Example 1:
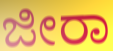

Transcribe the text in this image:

ಜೀರಾ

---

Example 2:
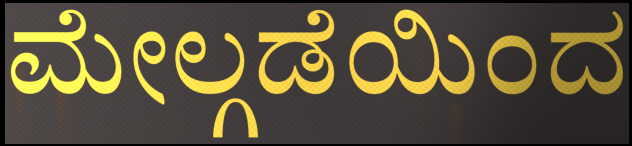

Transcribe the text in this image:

ಮೇಲ್ಗಡೆಯಿಂದ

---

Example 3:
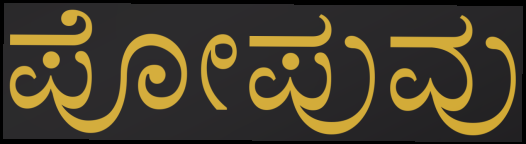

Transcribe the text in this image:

ಪೋಪುವು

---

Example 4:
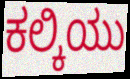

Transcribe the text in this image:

ಕಲ್ಕಿಯು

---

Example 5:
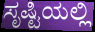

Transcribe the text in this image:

ಸೃಷ್ಟಿಯಲ್ಲಿ